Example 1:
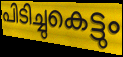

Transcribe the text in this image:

പിടിച്ചുകെട്ടും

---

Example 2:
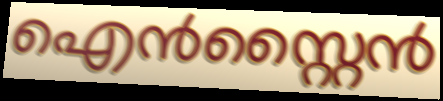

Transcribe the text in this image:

ഐൻസ്റ്റൈൻ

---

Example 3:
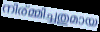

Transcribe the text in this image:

നിര്മ്മിച്ചതുമായ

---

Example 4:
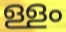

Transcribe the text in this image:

ള്ളം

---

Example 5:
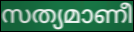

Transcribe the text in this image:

സത്യമാണീ